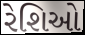
રેશિઓ